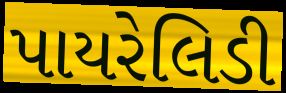
પાયરેલિડી